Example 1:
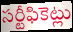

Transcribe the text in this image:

సర్టీఫికెట్లు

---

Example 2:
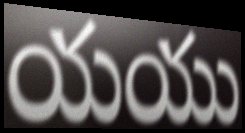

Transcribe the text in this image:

యయు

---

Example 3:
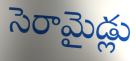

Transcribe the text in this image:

సెరామైడ్లు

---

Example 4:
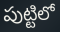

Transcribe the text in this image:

పుట్టిలో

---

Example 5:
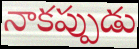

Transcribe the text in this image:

నాకప్పుడు